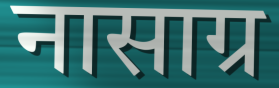
नासाग्र